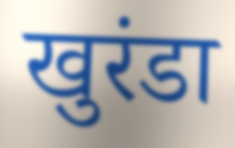
खुरंडा